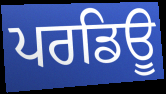
ਪਰਡਿਊ